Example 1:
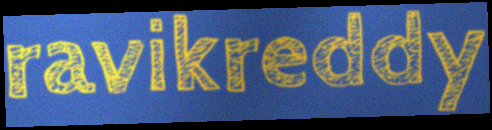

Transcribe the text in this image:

ravikreddy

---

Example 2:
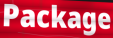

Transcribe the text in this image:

Package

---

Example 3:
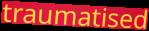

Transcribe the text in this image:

traumatised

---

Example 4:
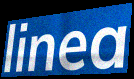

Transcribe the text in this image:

linea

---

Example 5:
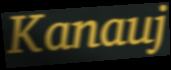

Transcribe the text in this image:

Kanauj